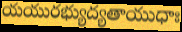
యయురభ్యుద్యతాయుధాః